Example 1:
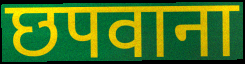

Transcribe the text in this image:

छपवाना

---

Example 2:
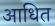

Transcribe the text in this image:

आधित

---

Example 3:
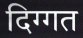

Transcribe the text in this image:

दिग्गत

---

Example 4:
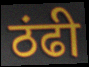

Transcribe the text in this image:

ठंढी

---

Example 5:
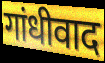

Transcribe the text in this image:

गांधीवाद